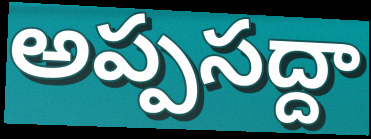
అప్పసద్దా